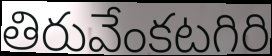
తిరువేంకటగిరి